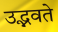
उद्भवते